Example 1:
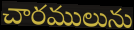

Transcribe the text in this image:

చారములును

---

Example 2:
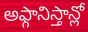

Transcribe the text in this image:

అఫ్గానిస్తాన్లో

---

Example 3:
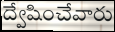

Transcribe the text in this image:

ద్వేషించేవారు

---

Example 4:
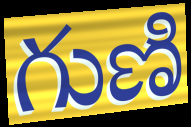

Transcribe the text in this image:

గుణి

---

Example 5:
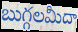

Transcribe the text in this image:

బుగ్గలమీదా